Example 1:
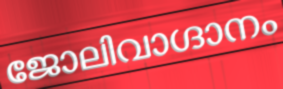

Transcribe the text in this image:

ജോലിവാഗ്ദാനം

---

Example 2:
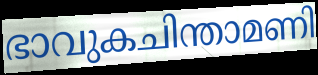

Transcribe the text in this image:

ഭാവുകചിന്താമണി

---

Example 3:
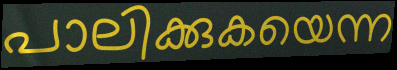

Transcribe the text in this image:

പാലിക്കുകയെന്ന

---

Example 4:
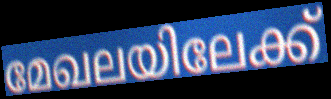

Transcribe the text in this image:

മേഖലയിലേക്ക്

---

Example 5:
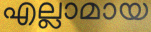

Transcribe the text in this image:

എല്ലാമായ